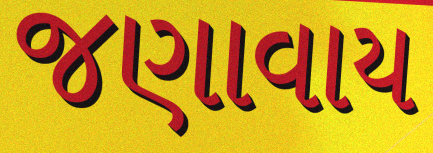
જણાવાય